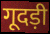
गूदड़ी